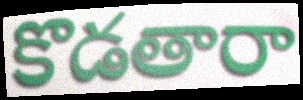
కొడతారా